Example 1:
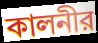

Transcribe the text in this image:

কালনীর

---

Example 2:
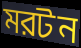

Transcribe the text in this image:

মরটন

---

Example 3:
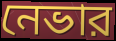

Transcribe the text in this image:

নেভার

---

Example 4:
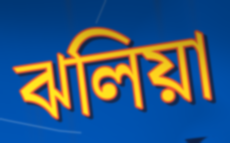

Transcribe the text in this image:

ঝলিয়া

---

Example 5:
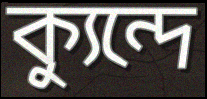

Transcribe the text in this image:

ক্যুন্দে